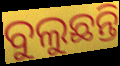
ବୁଲୁଛନ୍ତି